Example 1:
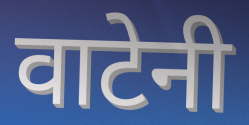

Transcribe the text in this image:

वाटेनी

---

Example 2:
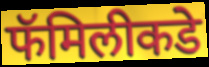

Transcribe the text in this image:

फॅमिलीकडे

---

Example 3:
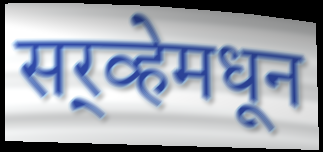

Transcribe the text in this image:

सर्व्हेमधून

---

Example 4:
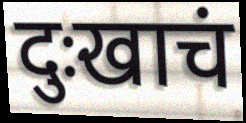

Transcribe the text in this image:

दुःखाचं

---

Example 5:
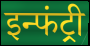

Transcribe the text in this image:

इन्फंट्री